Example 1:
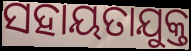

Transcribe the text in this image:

ସହାୟତାଯୁକ୍ତ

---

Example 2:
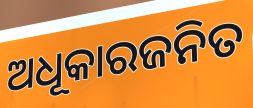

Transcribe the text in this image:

ଅଧୂକାରଜନିତ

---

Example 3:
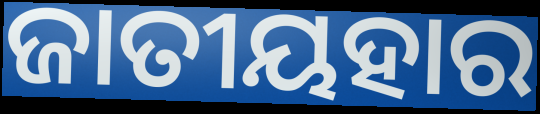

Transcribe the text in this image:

ଜାତୀୟହାର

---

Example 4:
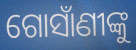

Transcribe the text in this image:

ଗୋସାଁଣୀଙ୍କୁ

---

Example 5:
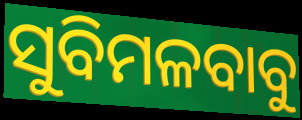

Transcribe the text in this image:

ସୁବିମଳବାବୁ